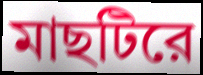
মাছটিরে